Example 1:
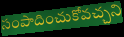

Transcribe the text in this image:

సంపాదించుకోవచ్చని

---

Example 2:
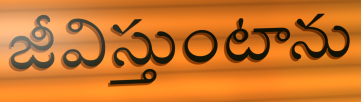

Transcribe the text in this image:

జీవిస్తుంటాను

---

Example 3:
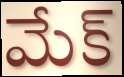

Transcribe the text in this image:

మేక్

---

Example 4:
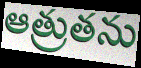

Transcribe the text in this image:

ఆత్రుతను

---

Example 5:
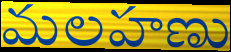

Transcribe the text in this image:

మలహణు